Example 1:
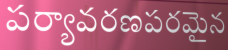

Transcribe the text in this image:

పర్యావరణపరమైన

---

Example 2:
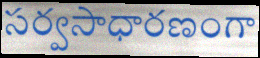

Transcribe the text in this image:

సర్వసాధారణంగా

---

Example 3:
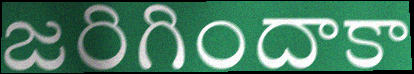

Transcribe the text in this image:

జరిగిందాకా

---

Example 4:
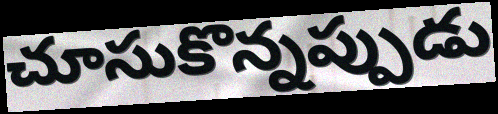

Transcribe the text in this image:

చూసుకొన్నప్పుడు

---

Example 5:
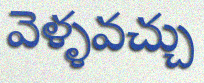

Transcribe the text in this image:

వెళ్ళవచ్చు